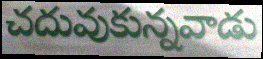
చదువుకున్నవాడు